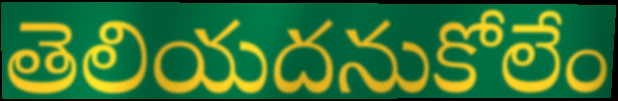
తెలియదనుకోలేం